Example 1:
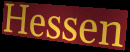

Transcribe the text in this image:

Hessen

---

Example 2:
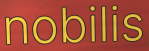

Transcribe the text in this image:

nobilis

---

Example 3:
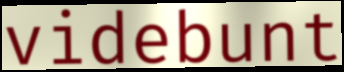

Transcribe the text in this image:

videbunt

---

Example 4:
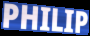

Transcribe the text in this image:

PHILIP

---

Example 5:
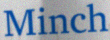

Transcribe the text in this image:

Minch